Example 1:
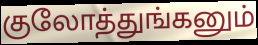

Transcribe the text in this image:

குலோத்துங்கனும்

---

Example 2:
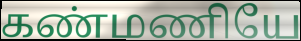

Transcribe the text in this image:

கண்மணியே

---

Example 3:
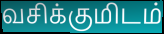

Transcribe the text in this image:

வசிக்குமிடம்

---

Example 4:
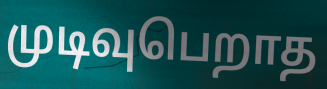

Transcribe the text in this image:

முடிவுபெறாத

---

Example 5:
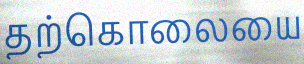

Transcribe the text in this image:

தற்கொலையை